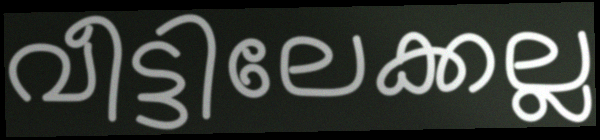
വീട്ടിലേക്കല്ല